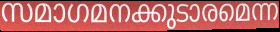
സമാഗമനക്കുടാരമെന്ന